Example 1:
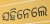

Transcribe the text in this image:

ସହିନେଲେ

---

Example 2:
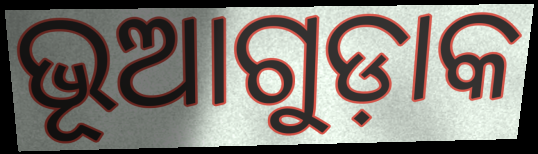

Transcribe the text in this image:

ଭୂଆଗୁଡ଼ାକ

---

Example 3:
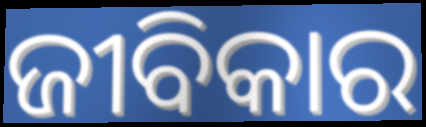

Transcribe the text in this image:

ଜୀବିକାର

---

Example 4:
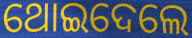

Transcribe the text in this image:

ଥୋଇଦେଲେ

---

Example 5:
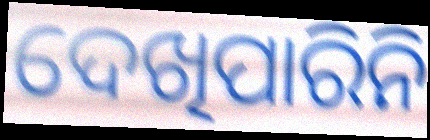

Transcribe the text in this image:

ଦେଖିପାରିନି